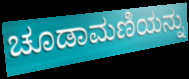
ಚೂಡಾಮಣಿಯನ್ನು